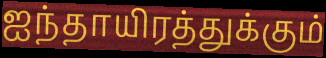
ஐந்தாயிரத்துக்கும்